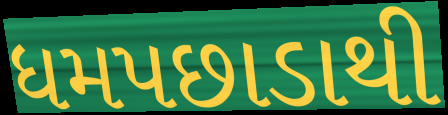
ધમપછાડાથી